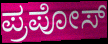
ಪ್ರಪೋಸ್